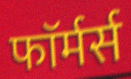
फॉर्मर्स